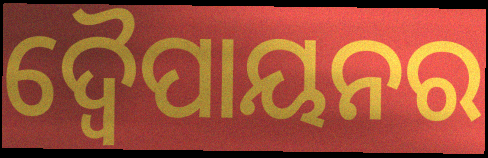
ଦ୍ୱୈପାୟନର